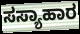
ಸಸ್ಯಾಹಾರ